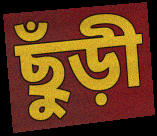
ছুঁড়ী